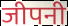
जीपनी